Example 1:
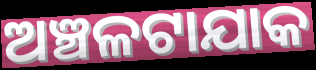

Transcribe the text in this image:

ଅଞ୍ଚଳଟାଯାକ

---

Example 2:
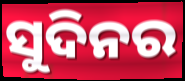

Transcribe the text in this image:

ସୁଦିନର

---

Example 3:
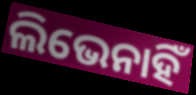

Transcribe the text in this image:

ଲିଭେନାହିଁ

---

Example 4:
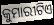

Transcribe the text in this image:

କୁମାରୀଟିଏ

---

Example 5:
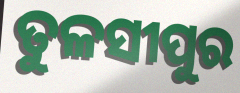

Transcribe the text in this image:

ତୁଳସୀପୁର